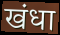
खंधा